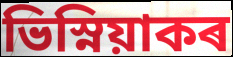
ভিস্নিয়াকৰ